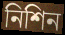
নিশিন